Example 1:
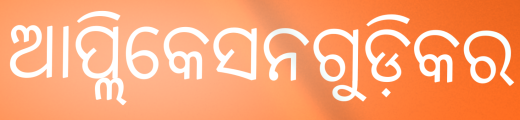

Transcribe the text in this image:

ଆପ୍ଲିକେସନଗୁଡ଼ିକର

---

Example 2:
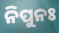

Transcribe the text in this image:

ନିପୁନଃ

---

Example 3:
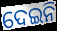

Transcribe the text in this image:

ଦେଇନି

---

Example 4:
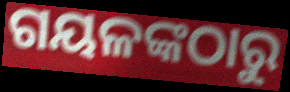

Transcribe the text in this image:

ଗୟଳଙ୍କଠାରୁ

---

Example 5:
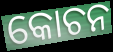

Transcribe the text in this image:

କୋଚନ